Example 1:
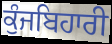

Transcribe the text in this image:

ਕੁੰਜਬਿਹਾਰੀ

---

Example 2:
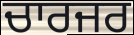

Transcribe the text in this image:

ਚਾਰਜਰ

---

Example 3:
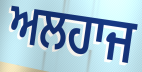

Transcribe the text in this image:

ਅਲਹਾਜ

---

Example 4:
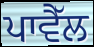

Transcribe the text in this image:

ਪਾਵੈੱਲ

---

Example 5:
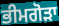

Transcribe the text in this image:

ਭੀਮਗੋੜਾ